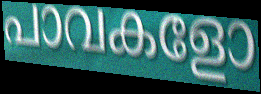
പാവകളോ